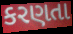
કરણતા